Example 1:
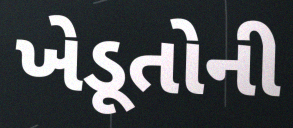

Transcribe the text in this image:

ખેડૂતોની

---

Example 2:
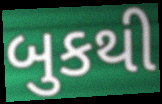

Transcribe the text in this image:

બુકથી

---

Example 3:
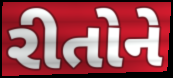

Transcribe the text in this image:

રીતોને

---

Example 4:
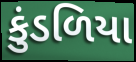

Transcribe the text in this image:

કુંડળિયા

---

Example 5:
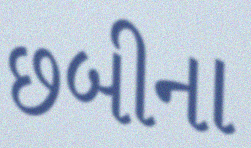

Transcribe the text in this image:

છબીના